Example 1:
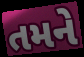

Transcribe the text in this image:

તમને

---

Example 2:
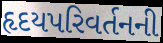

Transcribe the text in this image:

હૃદયપરિવર્તનની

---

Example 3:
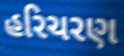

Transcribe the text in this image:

હરિચરણ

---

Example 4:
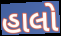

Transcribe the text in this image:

હાલો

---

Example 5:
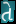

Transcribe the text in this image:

તે